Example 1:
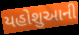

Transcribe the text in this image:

યહોશુઆની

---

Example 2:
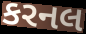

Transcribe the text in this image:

કરનલ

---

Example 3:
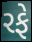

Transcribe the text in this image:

રફે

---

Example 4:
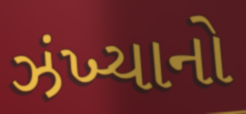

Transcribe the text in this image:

ઝંખ્યાનો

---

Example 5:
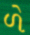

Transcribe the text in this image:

ળે